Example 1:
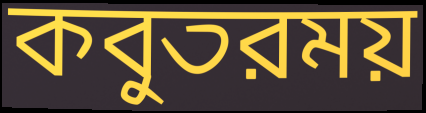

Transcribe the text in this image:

কবুতরময়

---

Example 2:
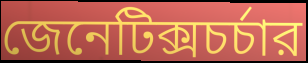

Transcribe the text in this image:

জেনেটিক্সচর্চার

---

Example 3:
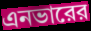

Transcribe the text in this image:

এনভারের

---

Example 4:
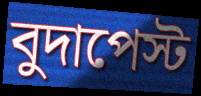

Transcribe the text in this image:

বুদাপেস্ট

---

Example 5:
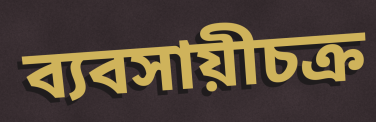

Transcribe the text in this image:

ব্যবসায়ীচক্র